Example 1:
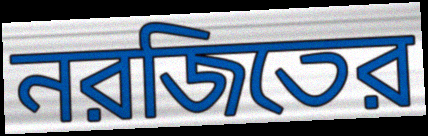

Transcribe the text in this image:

নরজিতের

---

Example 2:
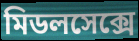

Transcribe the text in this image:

মিডলসেক্সে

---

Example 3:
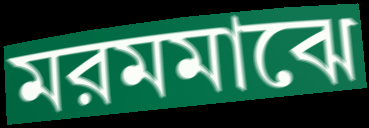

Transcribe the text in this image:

মরমমাঝে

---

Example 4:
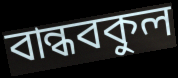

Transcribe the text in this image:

বান্ধবকুল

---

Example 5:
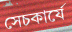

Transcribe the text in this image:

সেচকার্যে